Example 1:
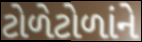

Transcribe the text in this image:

ટોળેટોળાંને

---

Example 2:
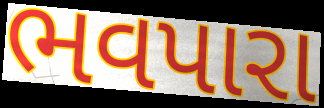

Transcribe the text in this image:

ભવપારા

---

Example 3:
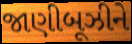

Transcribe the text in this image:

જાણીબૂઝીને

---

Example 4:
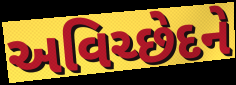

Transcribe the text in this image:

અવિચ્છેદને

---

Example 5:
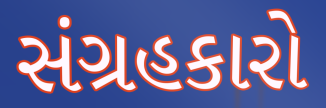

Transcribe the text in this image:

સંગ્રહકારો